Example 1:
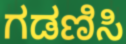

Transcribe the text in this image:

ಗಡಣಿಸಿ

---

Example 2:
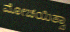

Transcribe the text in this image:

ಮೋಚಯಿತ್ವಾ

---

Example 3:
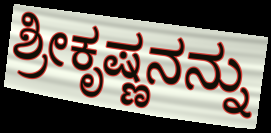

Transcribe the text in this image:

ಶ್ರೀಕೃಷ್ಣನನ್ನು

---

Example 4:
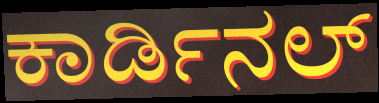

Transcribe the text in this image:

ಕಾರ್ಡಿನಲ್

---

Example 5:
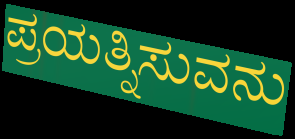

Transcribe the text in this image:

ಪ್ರಯತ್ನಿಸುವನು